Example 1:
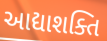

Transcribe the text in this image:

આદ્યાશક્તિ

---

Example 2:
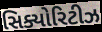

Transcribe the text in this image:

સિક્યોરિટીઝ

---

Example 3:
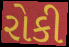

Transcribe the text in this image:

રોકી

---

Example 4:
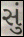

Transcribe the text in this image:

સું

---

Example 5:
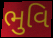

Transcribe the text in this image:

ભુવિ